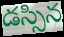
డస్సిన